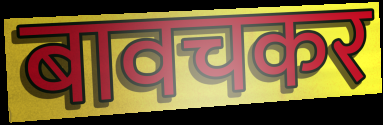
बावचकर